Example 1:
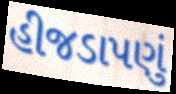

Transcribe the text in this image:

હીજડાપણું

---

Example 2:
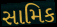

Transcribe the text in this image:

સામિક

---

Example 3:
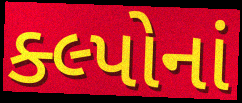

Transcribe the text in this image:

ક્લ્પોનાં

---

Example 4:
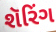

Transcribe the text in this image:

શૅરિંગ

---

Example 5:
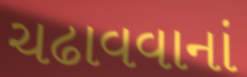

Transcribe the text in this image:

ચઢાવવાનાં